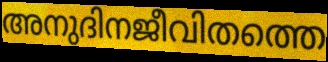
അനുദിനജീവിതത്തെ